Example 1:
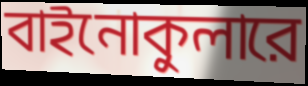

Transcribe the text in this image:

বাইনোকুলারে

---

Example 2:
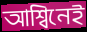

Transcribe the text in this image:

আশ্বিনেই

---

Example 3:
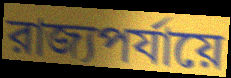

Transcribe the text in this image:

রাজ্যপর্যায়ে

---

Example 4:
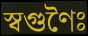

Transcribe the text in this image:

স্বগুণৈঃ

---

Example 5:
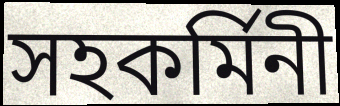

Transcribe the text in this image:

সহকর্মিনী